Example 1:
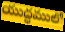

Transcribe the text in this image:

యుద్ధములో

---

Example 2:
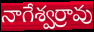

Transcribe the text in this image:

నాగేశ్వర్రావు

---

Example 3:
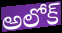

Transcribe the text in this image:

అలోక్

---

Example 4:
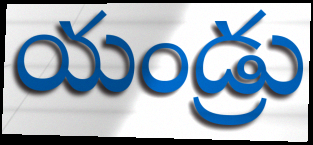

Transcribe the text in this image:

యండ్రు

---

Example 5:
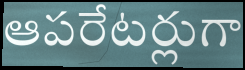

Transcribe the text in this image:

ఆపరేటర్లుగా